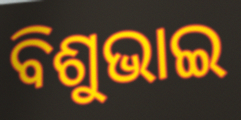
ବିଶୁଭାଇ